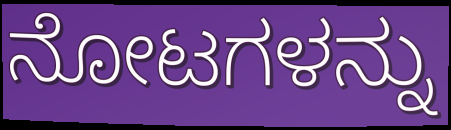
ನೋಟಗಳನ್ನು